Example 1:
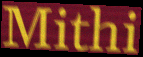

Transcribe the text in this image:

Mithi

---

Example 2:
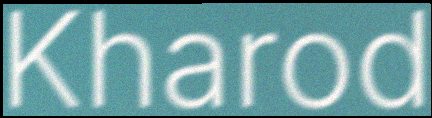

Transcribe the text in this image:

Kharod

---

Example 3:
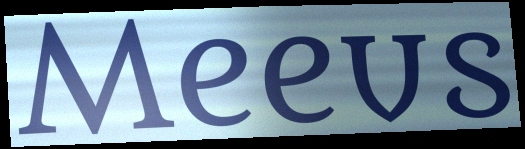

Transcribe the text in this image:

Meeus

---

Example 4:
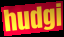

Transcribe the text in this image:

hudgi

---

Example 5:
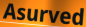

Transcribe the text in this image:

Asurved